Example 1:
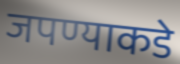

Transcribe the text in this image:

जपण्याकडे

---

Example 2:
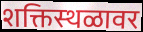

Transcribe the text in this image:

शक्तिस्थळावर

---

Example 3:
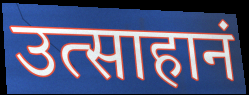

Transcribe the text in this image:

उत्साहानं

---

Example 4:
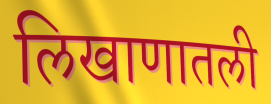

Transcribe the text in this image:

लिखाणातली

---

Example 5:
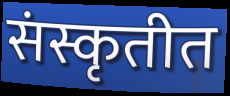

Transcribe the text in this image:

संस्कृतीत